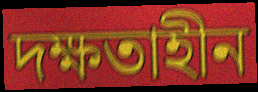
দক্ষতাহীন